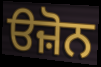
ੳਜ਼ੋਨ